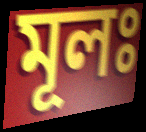
মূলঃ